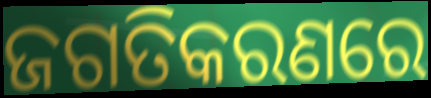
ଜଗତିକରଣରେ